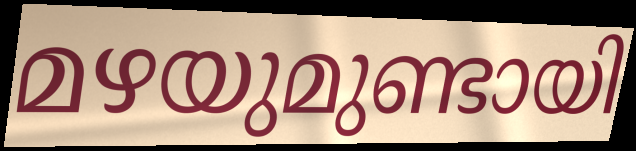
മഴയുമുണ്ടായി